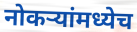
नोकऱ्यांमध्येच